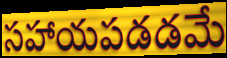
సహాయపడడమే